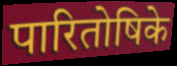
पारितोषिके